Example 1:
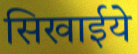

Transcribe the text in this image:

सिखाईये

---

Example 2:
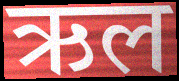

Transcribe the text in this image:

ऋल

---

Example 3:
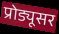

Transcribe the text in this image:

प्रोड्यूसर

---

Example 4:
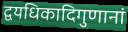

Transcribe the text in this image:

द्वयधिकादिगुणानां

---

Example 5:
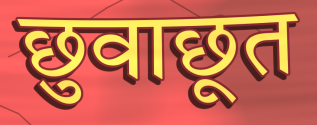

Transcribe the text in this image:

छुवाछूत